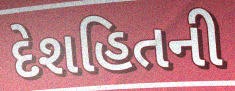
દેશહિતની